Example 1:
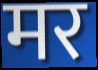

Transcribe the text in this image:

मर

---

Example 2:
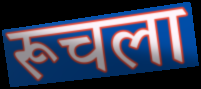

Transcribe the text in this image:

रूचला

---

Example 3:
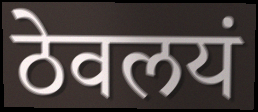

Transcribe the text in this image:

ठेवलयं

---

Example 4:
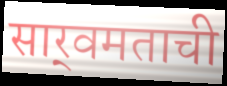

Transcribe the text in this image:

सार्वमताची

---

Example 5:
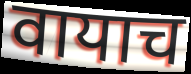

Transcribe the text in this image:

वायाच